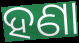
ହଣା